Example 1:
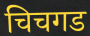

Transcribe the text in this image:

चिचगड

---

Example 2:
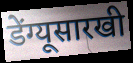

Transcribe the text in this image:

डेंग्यूसारखी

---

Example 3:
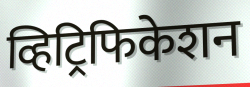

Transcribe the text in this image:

व्हिट्रिफिकेशन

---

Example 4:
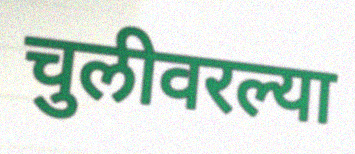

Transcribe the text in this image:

चुलीवरल्या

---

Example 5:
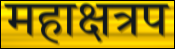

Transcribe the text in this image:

महाक्षत्रप